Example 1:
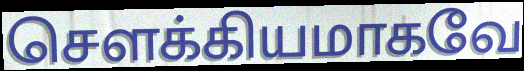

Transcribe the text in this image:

சௌக்கியமாகவே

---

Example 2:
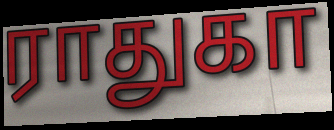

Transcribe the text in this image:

ராதுகா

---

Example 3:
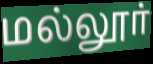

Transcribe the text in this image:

மல்லூர்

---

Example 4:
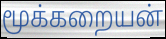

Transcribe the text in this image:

மூக்கறையன்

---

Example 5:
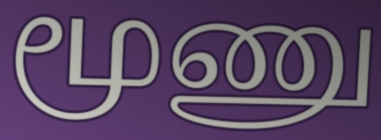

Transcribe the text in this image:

மூணு